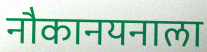
नौकानयनाला